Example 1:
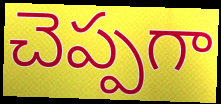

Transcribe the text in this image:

చెప్పగా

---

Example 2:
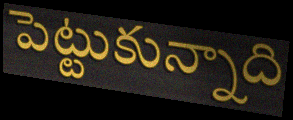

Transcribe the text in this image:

పెట్టుకున్నాది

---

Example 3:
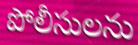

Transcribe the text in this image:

పోలీసులను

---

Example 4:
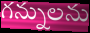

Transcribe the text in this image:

గన్నులను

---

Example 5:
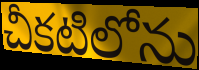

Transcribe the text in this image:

చీకటిలోను